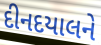
દીનદયાલને